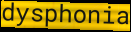
dysphonia